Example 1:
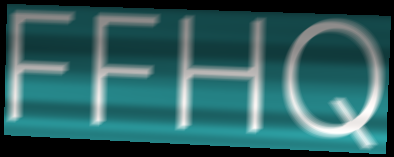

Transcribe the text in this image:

FFHQ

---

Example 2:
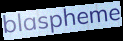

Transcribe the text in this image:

blaspheme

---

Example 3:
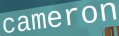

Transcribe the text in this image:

cameron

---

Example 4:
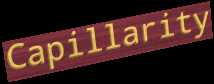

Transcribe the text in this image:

Capillarity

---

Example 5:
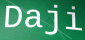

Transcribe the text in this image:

Daji